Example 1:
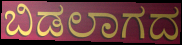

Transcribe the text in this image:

ಬಿಡಲಾಗದ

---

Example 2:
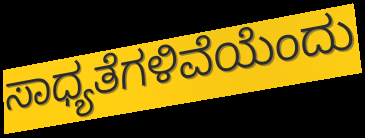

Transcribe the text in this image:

ಸಾಧ್ಯತೆಗಳಿವೆಯೆಂದು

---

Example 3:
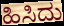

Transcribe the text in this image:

ಹಿಸಿದು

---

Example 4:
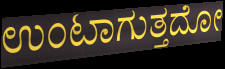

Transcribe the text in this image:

ಉಂಟಾಗುತ್ತದೋ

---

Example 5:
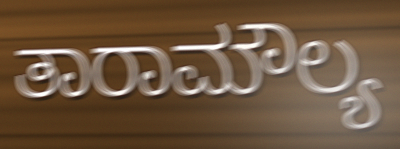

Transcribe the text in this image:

ತಾರಾಮೌಲ್ಯ